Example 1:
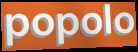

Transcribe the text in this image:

popolo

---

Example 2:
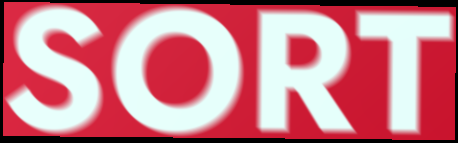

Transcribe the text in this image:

SORT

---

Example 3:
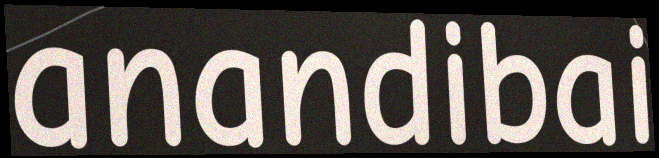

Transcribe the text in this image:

anandibai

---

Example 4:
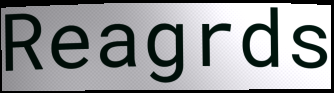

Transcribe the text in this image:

Reagrds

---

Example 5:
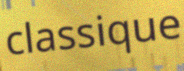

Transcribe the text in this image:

classique